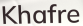
Khafre